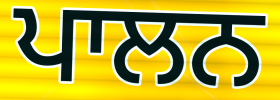
ਪਾਲਨ